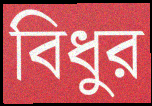
বিধুর